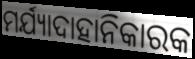
ମର୍ଯ୍ୟାଦାହାନିକାରକ